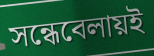
সন্ধেবেলায়ই